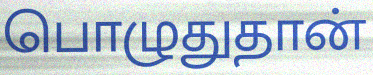
பொழுதுதான்